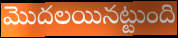
మొదలయినట్టుంది